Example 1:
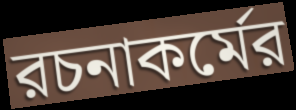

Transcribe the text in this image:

রচনাকর্মের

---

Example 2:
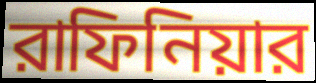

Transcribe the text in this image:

রাফিনিয়ার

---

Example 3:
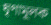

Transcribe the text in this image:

ঘৃণামূলক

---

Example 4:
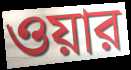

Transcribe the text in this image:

ওয়ার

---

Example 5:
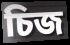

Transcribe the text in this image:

চিজ